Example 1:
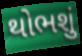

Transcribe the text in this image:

થોભશું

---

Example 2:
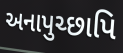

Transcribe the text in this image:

અનાપુચ્છાપિ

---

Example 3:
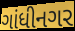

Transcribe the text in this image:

ગાંધીનગર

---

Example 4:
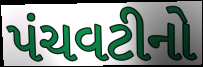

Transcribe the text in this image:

પંચવટીનો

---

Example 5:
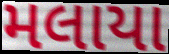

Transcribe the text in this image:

મલાયા